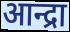
आन्द्रा